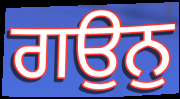
ਗਉਨੁ